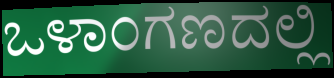
ಒಳಾಂಗಣದಲ್ಲಿ